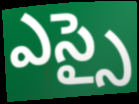
ఎస్సై